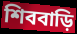
শিববাড়ি